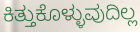
ಕಿತ್ತುಕೊಳ್ಳುವುದಿಲ್ಲ